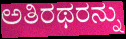
ಅತಿರಥರನ್ನು